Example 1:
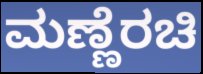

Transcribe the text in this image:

ಮಣ್ಣೆರಚಿ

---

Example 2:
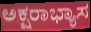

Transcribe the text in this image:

ಅಕ್ಷರಾಭ್ಯಾಸ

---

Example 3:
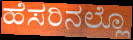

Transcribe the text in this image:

ಹೆಸರಿನಲ್ಲೊ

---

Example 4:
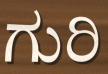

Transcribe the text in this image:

ಗುರಿ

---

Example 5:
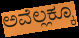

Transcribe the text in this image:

ಅವೆಲ್ಲಕ್ಕೂ